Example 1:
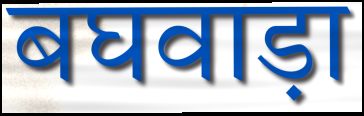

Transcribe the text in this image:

बघवाड़ा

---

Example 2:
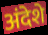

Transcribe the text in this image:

अंदेशे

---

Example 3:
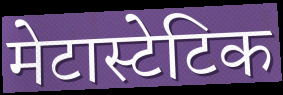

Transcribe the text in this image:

मेटास्टेटिक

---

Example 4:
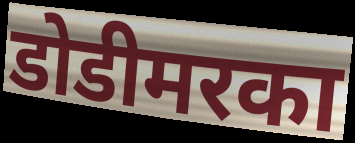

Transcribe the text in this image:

डोडीमरका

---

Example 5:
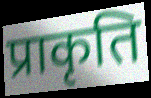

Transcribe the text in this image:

प्राकृति